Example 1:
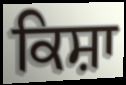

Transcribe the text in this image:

ਕਿਸ਼ਾ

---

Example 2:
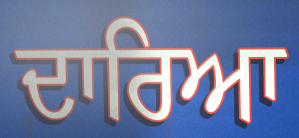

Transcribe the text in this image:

ਦਾਰਿਆ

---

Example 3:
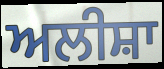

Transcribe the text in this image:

ਅਲੀਸ਼ਾ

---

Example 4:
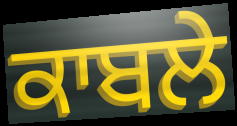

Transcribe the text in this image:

ਕਾਬਲੇ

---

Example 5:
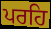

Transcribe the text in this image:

ਪਰਹਿ